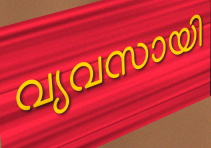
വ്യവസായി